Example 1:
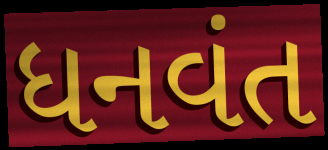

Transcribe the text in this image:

ધનવંત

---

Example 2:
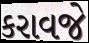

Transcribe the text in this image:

કરાવજે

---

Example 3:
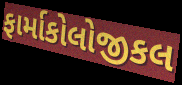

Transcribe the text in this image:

ફાર્માકોલોજીકલ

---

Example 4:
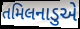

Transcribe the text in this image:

તમિલનાડુએ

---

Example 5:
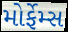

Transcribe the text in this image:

મોર્ફેમ્સ